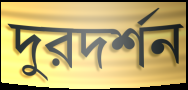
দুরদর্শন